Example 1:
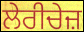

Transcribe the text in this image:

ਲੇਰੀਚੇਜ਼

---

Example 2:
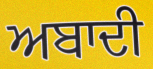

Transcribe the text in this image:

ਅਬਾਦੀ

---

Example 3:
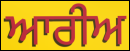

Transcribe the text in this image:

ਆਰੀਅ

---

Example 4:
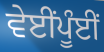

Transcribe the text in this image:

ਵੇਈਂਪੂੰਈਂ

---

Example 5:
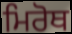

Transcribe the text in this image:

ਮਿਰੋਥ